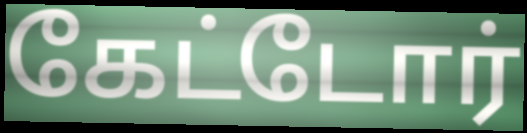
கேட்டோர்